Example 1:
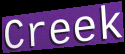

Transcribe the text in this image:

Creek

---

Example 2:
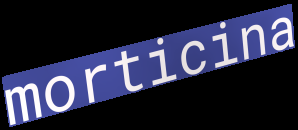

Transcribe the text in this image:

morticina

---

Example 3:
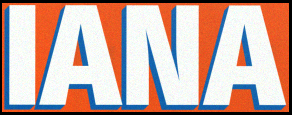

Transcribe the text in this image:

IANA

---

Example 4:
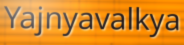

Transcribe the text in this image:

Yajnyavalkya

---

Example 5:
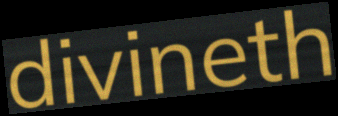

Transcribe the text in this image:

divineth